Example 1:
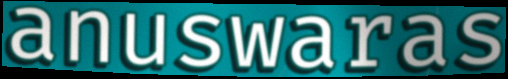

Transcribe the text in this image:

anuswaras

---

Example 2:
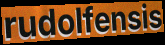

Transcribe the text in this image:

rudolfensis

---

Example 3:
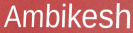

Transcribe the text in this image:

Ambikesh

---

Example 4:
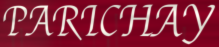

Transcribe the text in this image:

PARICHAY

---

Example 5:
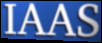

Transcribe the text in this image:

IAAS